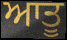
ਆਤੂ